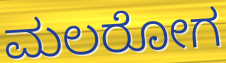
ಮಲರೋಗ